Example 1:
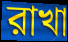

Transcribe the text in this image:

রাখা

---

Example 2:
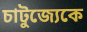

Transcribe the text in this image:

চাটুজ্যেকে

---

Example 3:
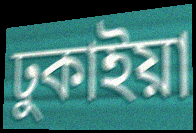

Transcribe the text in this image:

ঢুকাইয়া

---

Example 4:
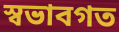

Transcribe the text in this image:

স্বভাবগত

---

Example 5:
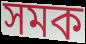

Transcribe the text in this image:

সমক